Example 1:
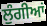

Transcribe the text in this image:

ਲੁੰਗੀਆਂ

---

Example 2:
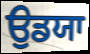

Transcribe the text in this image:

ਉਡਯਾ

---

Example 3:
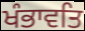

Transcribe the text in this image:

ਖੰਭਾਵਤਿ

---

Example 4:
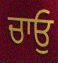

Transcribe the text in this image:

ਚਾਓੁ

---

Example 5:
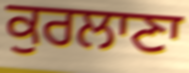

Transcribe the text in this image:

ਕੁਰਲਾਣਾ